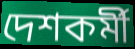
দেশকর্মী